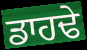
ਡਾਹਢੇ